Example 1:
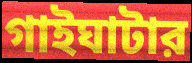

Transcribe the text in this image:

গাইঘাটার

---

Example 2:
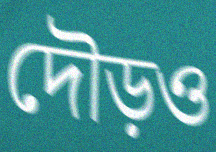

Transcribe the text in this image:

দৌড়ও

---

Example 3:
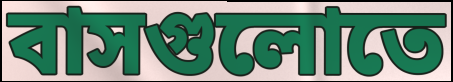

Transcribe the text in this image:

বাসগুলোতে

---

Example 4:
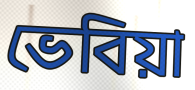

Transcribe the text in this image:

ভেবিয়া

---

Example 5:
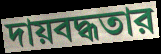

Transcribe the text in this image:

দায়বদ্ধতার